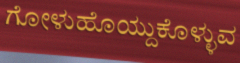
ಗೋಳುಹೊಯ್ದುಕೊಳ್ಳುವ